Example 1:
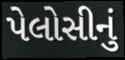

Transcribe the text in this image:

પેલોસીનું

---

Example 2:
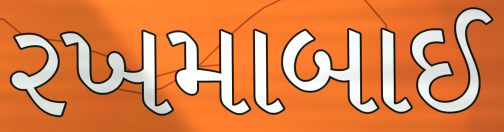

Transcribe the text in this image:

રખમાબાઈ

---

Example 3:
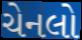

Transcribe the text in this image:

ચેનલો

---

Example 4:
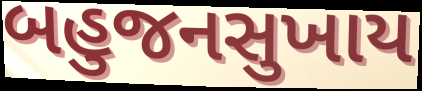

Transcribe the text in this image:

બહુજનસુખાય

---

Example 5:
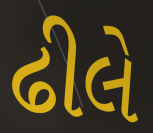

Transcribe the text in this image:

ઢીલે